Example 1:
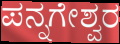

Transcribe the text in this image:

ಪನ್ನಗೇಶ್ವರ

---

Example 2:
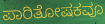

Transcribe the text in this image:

ಪಾರಿತೋಷಕವೂ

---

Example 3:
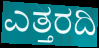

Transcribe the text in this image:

ಎತ್ತರದಿ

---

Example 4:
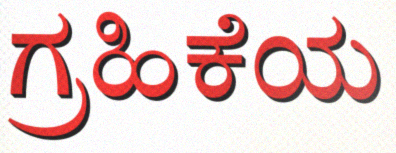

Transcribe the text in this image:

ಗ್ರಹಿಕೆಯ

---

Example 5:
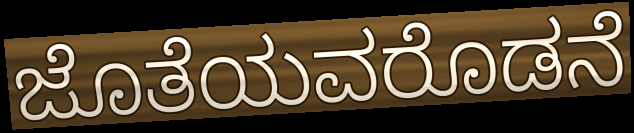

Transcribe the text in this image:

ಜೊತೆಯವರೊಡನೆ